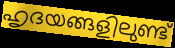
ഹൃദയങ്ങളിലുണ്ട്